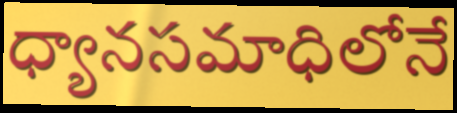
ధ్యానసమాధిలోనే